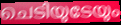
ചെടിയുടേയും